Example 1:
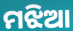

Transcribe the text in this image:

ମଝିଆ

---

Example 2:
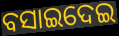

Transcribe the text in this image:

ବସାଇଦେଇ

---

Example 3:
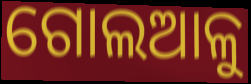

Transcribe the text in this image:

ଗୋଲଆଳୁ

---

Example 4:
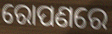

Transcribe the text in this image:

ରୋପଣରେ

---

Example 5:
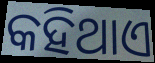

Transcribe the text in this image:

କହିଥାଏ